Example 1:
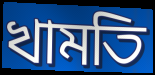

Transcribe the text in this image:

খামতি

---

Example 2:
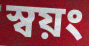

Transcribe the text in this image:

স্বয়ং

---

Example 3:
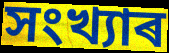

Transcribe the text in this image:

সংখ্যাৰ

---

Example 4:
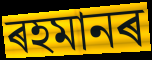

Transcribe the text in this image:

ৰহমানৰ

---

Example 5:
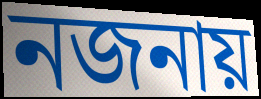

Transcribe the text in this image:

নজনায়